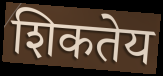
शिकतेय